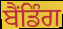
ਬੈਂਡਿੰਗ